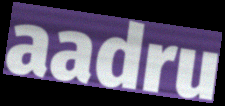
aadru